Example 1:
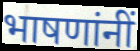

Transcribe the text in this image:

भाषणांनीं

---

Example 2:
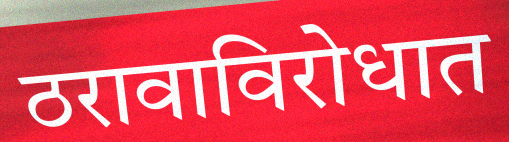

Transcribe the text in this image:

ठरावाविरोधात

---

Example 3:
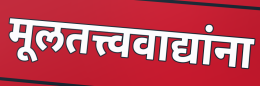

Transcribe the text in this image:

मूलतत्त्ववाद्यांना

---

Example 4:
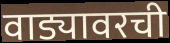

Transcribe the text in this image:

वाड्यावरची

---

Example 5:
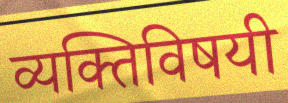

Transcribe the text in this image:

व्यक्तिविषयी